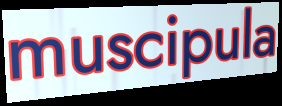
muscipula